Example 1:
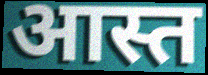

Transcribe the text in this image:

आस्त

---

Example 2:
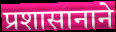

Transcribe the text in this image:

प्रशासानाने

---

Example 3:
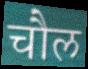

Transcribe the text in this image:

चौल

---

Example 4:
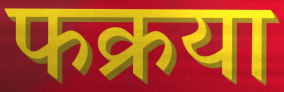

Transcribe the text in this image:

फक्रया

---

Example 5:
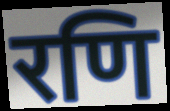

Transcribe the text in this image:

रणि